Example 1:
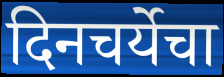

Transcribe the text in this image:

दिनचर्येचा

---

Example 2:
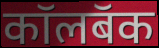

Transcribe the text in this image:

कॉलबॅक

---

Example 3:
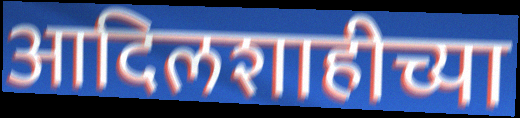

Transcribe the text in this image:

आदिलशाहीच्या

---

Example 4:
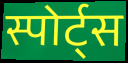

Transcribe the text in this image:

स्पोर्ट्स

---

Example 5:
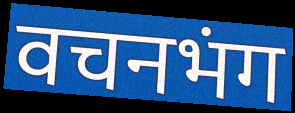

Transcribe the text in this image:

वचनभंग